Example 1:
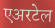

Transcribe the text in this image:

एअरटेल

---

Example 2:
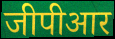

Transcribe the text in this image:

जीपीआर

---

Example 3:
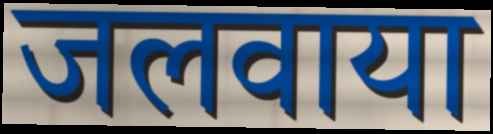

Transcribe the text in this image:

जलवाया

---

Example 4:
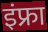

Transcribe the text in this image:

इंफ्रा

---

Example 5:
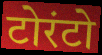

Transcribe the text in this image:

टोरंटो